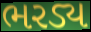
ભરડ્ય